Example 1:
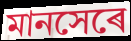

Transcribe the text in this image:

মানসেৰে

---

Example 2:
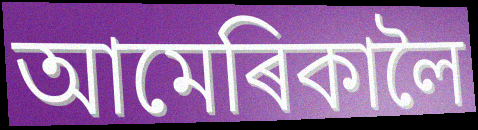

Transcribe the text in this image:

আমেৰিকালৈ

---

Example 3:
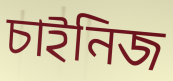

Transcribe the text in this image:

চাইনিজ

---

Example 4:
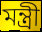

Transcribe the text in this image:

মন্ত্ৰী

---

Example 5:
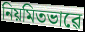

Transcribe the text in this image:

নিয়মিতভাৱে